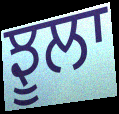
ਝੂਲਾ